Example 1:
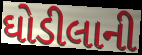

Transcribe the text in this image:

ઘોડીલાની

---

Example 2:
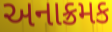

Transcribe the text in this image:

અનાક્રમક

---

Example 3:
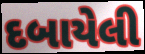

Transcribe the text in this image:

દબાયેલી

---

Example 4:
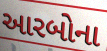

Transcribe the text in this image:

આરબોના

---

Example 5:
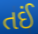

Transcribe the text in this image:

તઈં